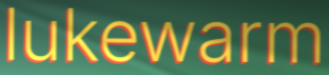
lukewarm